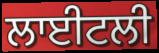
ਲਾਈਟਲੀ